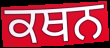
ਕਥਨ